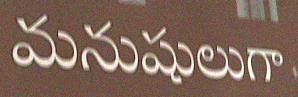
మనుషులుగా